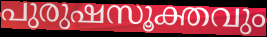
പുരുഷസൂക്തവും